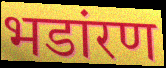
भडांरण